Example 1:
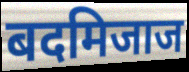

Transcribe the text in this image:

बदमिजाज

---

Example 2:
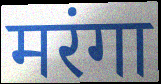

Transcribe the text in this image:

मरंगा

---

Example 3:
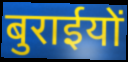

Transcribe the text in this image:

बुराईयों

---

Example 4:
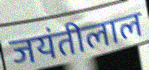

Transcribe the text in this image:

जयंतीलाल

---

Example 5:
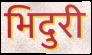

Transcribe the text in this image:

भिदुरी